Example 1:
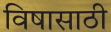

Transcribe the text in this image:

विषासाठी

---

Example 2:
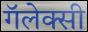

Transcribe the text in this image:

गॅलेक्सी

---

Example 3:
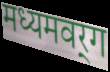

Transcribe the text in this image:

मध्यमवर्ग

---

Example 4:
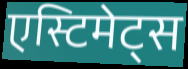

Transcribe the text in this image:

एस्टिमेट्स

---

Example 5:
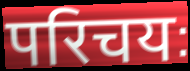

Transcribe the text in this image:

परिचयः